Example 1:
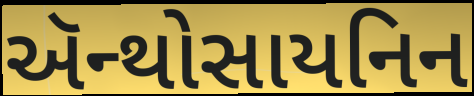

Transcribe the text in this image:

ઍન્થોસાયનિન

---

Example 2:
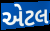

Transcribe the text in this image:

એટલ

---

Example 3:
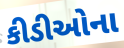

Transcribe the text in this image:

કીડીઓના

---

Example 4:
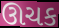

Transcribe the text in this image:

ઊચક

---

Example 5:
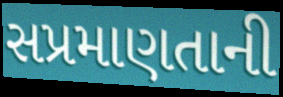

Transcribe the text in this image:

સપ્રમાણતાની